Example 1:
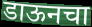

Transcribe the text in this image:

डाऊनचा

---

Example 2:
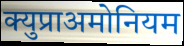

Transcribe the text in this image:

क्युप्राअमोनियम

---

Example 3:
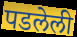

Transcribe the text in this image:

पडलेली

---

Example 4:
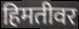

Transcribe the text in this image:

हिमतीवर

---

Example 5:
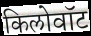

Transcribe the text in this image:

किलोवॉट